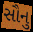
સૌનુ